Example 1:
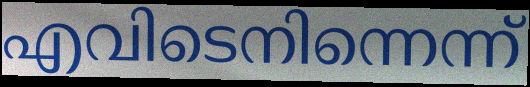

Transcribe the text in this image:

എവിടെനിന്നെന്ന്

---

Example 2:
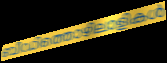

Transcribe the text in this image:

ബീഡിത്തൊഴിലാളികൾ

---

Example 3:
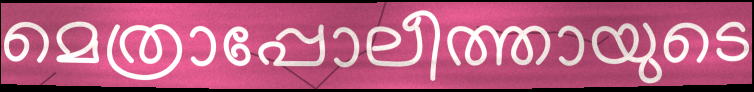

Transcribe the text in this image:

മെത്രാപ്പോലീത്തായുടെ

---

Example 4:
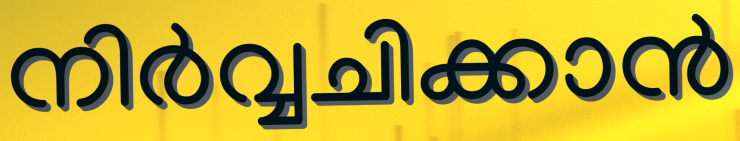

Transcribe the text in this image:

നിർവ്വചിക്കാൻ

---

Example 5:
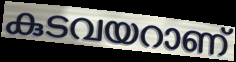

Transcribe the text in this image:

കുടവയറാണ്